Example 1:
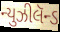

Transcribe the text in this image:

ન્યુઝીલૅન્ડ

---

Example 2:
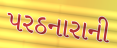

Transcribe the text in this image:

પરઠનારાની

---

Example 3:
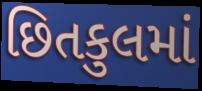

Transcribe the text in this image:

છિતકુલમાં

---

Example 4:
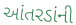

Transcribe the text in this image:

આંતરડાંની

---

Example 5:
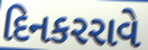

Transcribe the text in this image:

દિનકરરાવે